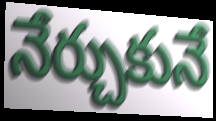
నేర్చుకునే